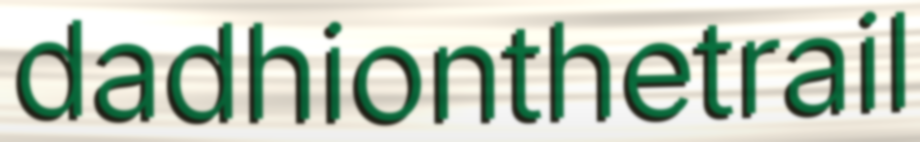
dadhionthetrail